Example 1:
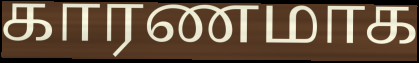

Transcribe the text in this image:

காரணமாக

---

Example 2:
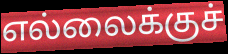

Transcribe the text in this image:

எல்லைக்குச்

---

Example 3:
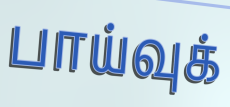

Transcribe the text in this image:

பாய்வுக்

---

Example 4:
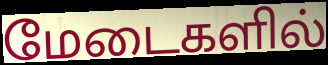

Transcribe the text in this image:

மேடைகளில்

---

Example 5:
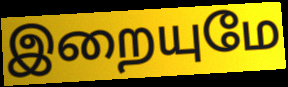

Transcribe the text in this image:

இறையுமே